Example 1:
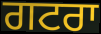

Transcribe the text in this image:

ਗਟਰਾ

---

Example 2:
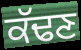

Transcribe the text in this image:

ਕੱਢਣ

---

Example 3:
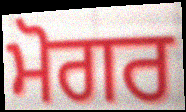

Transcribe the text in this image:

ਮੋਗਰ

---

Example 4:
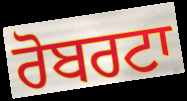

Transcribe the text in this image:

ਰੋਬਰਟਾ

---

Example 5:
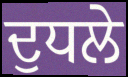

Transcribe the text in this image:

ਦੁਧਲੇ